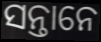
ସନ୍ତାନେ